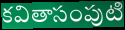
కవితాసంపుటి